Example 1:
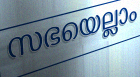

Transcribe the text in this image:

സഭയെല്ലാം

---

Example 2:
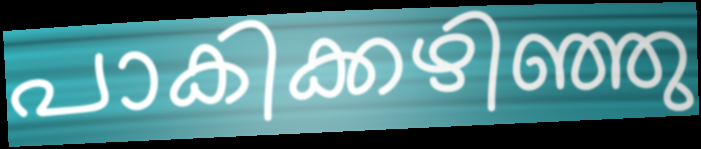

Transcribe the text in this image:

പാകിക്കഴിഞ്ഞു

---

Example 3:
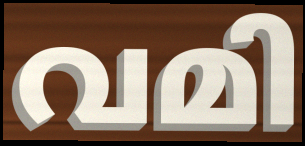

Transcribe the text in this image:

വമി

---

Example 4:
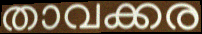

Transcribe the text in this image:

താവക്കര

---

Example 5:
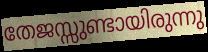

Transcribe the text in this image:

തേജസ്സുണ്ടായിരുന്നു